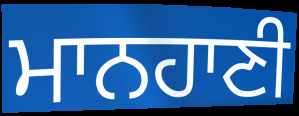
ਮਾਨਹਾਣੀ